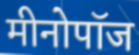
मीनोपॉज